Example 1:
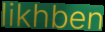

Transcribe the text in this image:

likhben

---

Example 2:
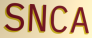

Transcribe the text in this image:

SNCA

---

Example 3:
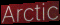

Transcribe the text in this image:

Arctic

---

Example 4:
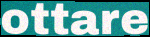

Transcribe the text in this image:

ottare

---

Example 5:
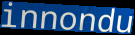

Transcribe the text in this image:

innondu